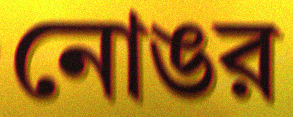
নোঙর